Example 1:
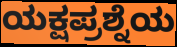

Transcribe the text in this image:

ಯಕ್ಷಪ್ರಶ್ನೆಯ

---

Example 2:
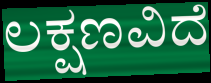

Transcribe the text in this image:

ಲಕ್ಷಣವಿದೆ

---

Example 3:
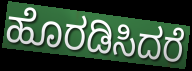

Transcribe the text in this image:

ಹೊರಡಿಸಿದರೆ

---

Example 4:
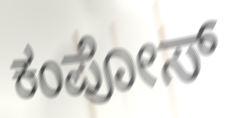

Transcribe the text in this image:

ಕಂಪೋಸ್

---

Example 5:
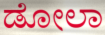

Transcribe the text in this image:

ಡೋಲಾ